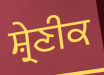
ਸ਼੍ਰੇਣੀਕ